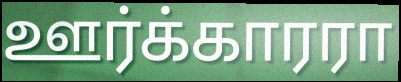
ஊர்க்காரரா